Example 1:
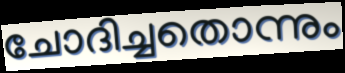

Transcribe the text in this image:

ചോദിച്ചതൊന്നും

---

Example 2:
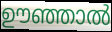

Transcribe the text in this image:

ഊഞ്ഞാൽ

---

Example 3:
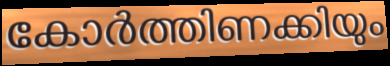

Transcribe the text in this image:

കോർത്തിണക്കിയും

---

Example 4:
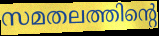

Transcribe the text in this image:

സമതലത്തിന്റെ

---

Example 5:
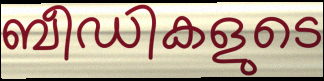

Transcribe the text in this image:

ബീഡികളുടെ